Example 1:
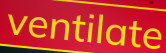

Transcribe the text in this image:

ventilate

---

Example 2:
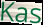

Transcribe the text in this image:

Kas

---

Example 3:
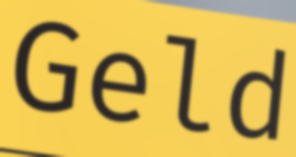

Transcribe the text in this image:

Geld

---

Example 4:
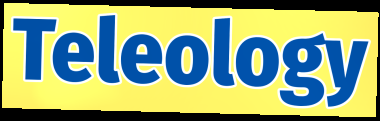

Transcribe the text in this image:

Teleology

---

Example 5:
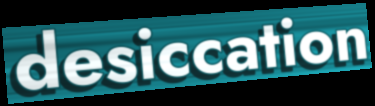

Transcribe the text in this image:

desiccation